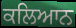
ਕਲਿਆਨ